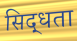
सिद्धता